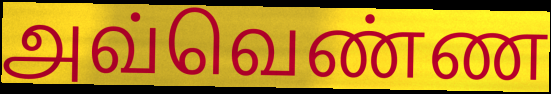
அவ்வெண்ண